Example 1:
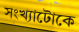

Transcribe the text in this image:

সংখ্যাটোকে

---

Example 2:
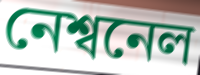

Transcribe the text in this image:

নেশ্বনেল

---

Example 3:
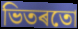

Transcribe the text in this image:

ভিতৰতো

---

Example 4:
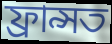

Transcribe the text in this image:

ফ্ৰান্সত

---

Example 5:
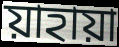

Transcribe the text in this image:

য়াহায়া